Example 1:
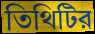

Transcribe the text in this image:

তিথিটির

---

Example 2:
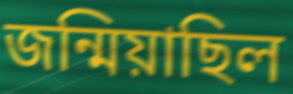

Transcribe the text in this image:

জন্মিয়াছিল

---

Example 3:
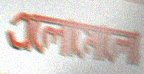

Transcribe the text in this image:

এলোমোলো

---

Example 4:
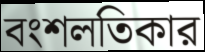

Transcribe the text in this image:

বংশলতিকার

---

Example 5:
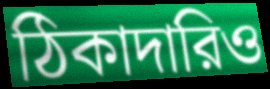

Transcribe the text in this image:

ঠিকাদারিও